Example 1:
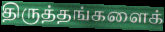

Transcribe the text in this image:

திருத்தங்களைக்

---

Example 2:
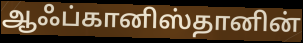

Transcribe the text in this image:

ஆஃப்கானிஸ்தானின்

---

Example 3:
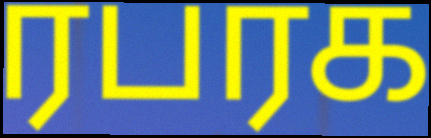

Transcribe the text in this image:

ரபரக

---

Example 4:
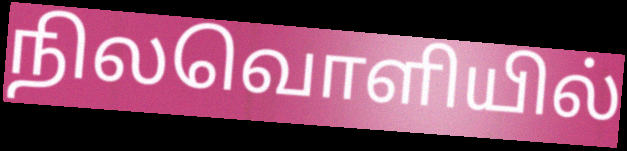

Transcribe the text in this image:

நிலவொளியில்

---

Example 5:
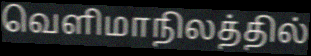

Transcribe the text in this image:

வெளிமாநிலத்தில்